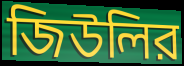
জিউলির